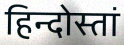
हिन्दोस्तां